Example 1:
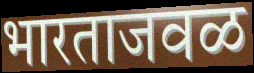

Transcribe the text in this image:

भारताजवळ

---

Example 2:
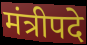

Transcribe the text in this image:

मंत्रीपदे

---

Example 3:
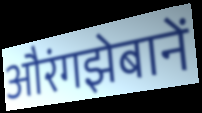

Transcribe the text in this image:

औरंगझेबानें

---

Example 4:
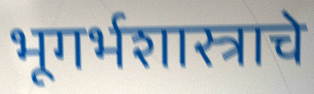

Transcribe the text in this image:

भूगर्भशास्त्राचे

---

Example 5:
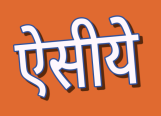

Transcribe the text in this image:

ऐसीये